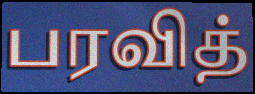
பரவித்